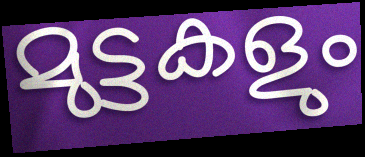
മുട്ടകളും